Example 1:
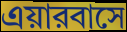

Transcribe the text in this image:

এয়ারবাসে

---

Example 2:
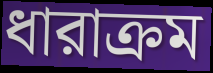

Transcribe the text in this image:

ধারাক্রম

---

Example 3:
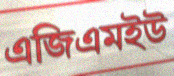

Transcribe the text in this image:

এজিএমইউ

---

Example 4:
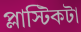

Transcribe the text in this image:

প্লাস্টিকটা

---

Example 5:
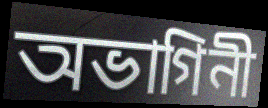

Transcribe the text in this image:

অভাগিনী